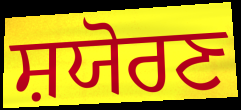
ਸ਼ਯੋਰਣ